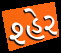
શ્હેર